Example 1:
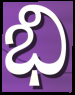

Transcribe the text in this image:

భి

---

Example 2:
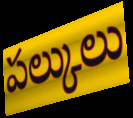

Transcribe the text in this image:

పల్కులు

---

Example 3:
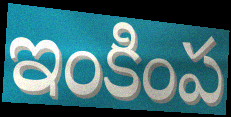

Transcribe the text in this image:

ఇంకింప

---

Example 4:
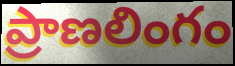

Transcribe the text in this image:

ప్రాణలింగం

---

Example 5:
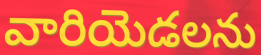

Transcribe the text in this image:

వారియెడలను